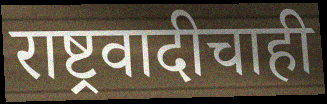
राष्ट्रवादीचाही